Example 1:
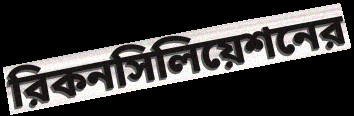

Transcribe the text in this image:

রিকনসিলিয়েশনের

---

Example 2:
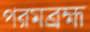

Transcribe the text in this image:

পরমব্রহ্ম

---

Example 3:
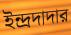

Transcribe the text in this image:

ইন্দ্রদাদার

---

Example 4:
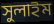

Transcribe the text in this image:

সুলাইম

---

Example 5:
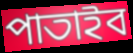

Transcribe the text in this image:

পাতাইব